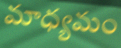
మాధ్యమం